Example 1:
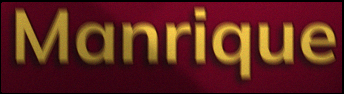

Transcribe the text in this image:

Manrique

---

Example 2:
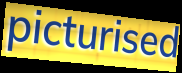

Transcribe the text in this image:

picturised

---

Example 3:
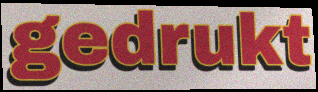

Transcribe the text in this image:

gedrukt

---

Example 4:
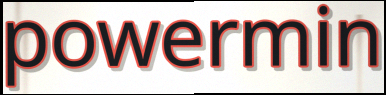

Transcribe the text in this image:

powermin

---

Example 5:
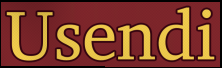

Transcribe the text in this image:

Usendi